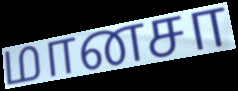
மானசா